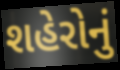
શહેરોનું